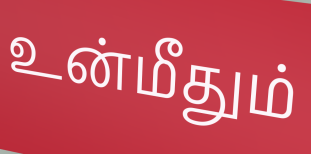
உன்மீதும்